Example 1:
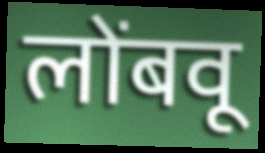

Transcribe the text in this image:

लोंबवू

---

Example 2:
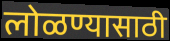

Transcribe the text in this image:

लोळण्यासाठी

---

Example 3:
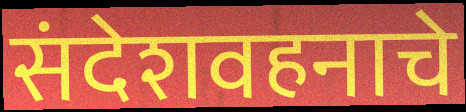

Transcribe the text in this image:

संदेशवहनाचे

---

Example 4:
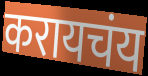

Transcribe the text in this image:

करायचंय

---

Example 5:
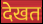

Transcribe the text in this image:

देखत